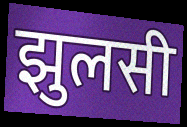
झुलसी